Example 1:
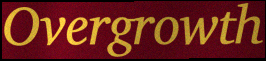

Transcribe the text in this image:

Overgrowth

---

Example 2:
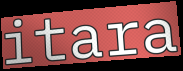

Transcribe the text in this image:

itara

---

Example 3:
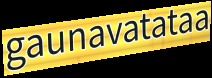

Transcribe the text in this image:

gaunavatataa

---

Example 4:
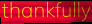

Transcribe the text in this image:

thankfully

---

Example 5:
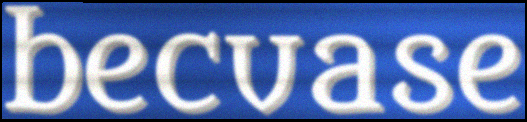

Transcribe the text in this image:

becuase